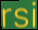
rsi